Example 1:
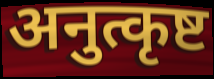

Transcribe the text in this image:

अनुत्कृष्ट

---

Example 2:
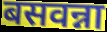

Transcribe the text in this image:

बसवन्ना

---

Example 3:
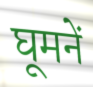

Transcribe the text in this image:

घूमनें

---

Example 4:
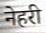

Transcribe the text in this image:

नेहरी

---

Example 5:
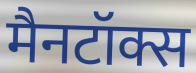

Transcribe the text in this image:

मैनटॉक्स